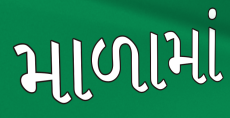
માળામાં